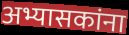
अभ्यासकांना